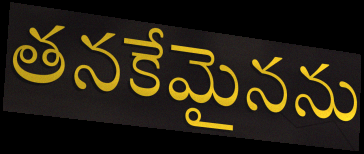
తనకేమైనను